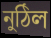
নুঠিল